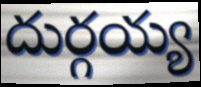
దుర్గయ్య